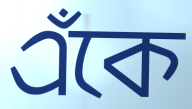
এঁকে